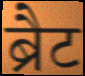
ब्रैट